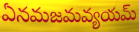
ఏనమజమవ్యయమ్